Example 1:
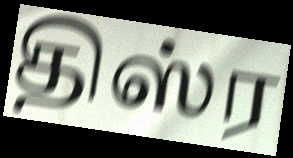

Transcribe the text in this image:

திஸ்ர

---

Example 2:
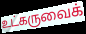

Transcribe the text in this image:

உட்கருவைக்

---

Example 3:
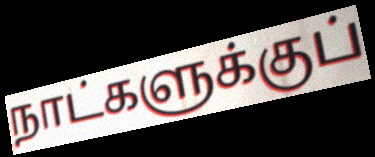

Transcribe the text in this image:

நாட்களுக்குப்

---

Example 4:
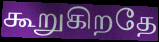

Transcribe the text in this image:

கூறுகிறதே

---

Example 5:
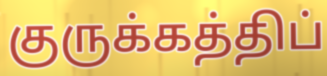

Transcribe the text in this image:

குருக்கத்திப்